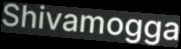
Shivamogga